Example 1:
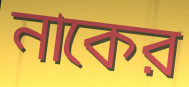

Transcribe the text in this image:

নাকের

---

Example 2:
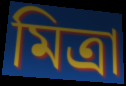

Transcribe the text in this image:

মিত্রা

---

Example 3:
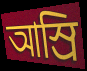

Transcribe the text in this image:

আস্রি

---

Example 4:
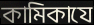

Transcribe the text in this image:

কামিকাযে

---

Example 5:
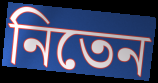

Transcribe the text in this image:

নিতেন